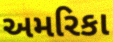
અમરિકા